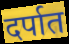
दर्पात